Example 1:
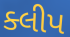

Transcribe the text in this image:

ક્લીપ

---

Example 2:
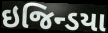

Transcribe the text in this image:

ઇજિન્ડયા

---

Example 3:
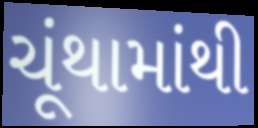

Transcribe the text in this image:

ચૂંથામાંથી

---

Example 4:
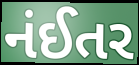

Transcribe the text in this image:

નંઈતર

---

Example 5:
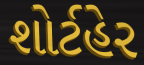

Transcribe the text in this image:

શોર્ટહેર